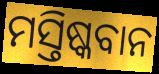
ମସ୍ତିଷ୍କବାନ